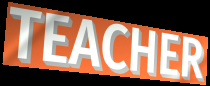
TEACHER